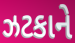
ઝટકાને